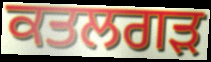
ਕਤਲਗੜ